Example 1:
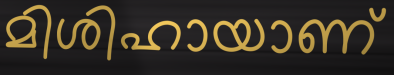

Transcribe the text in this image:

മിശിഹായാണ്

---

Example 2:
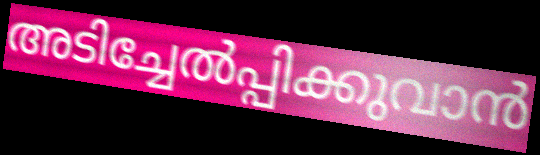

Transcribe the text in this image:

അടിച്ചേൽപ്പിക്കുവാൻ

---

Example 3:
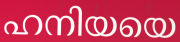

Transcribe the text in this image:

ഹനിയയെ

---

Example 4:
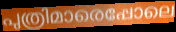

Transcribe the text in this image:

പുത്രിമാരെപ്പോലെ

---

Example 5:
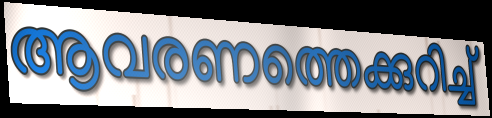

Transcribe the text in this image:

ആവരണത്തെക്കുറിച്ച്